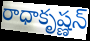
రాధాకృష్ణన్